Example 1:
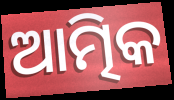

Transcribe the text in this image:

ଆତ୍ମିକ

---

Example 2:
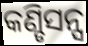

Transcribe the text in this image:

କଣ୍ଡିସନ୍ସ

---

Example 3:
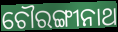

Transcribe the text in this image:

ଚୌରଙ୍ଗୀନାଥ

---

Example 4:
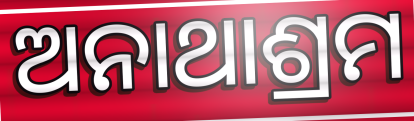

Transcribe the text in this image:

ଅନାଥାଶ୍ରମ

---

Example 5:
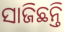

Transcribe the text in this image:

ସାଜିଛନ୍ତି